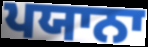
ਪਯਾਨਾ